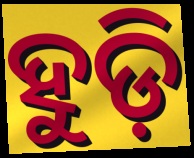
ହୁଡ଼ି